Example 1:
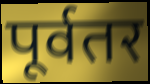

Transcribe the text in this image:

पूर्वतर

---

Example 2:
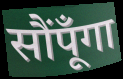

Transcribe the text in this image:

सौंपूँगा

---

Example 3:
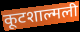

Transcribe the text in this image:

कूटशाल्मली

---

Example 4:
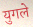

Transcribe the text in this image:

युगले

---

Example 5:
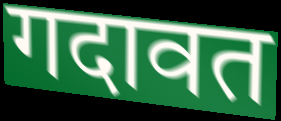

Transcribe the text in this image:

गदावत